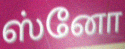
ஸ்னோ